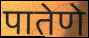
पातेणे